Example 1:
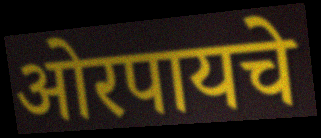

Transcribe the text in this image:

ओरपायचे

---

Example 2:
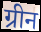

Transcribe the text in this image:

ग्रीन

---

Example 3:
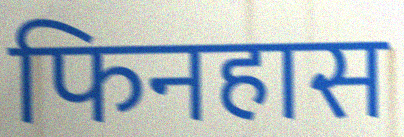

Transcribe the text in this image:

फिनहास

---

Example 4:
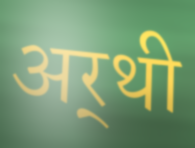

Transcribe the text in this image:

अर्थी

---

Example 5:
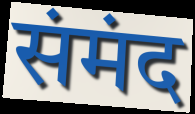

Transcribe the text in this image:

संमंद